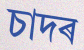
চাদৰ